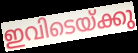
ഇവിടെയ്ക്കു